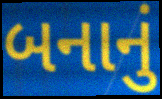
બનાનું